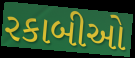
રકાબીઓ